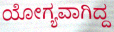
ಯೋಗ್ಯವಾಗಿದ್ದ